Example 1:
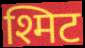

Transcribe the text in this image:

श्मिट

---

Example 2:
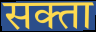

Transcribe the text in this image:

सक्‍ता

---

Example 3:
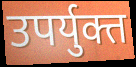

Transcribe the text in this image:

उपर्युक्त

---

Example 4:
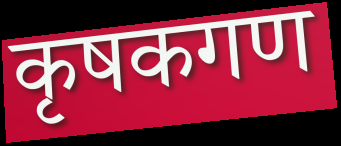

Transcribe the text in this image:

कृषकगण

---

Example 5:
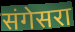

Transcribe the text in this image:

संगेसरा